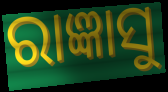
ରାଜ୍ଞାସୁ